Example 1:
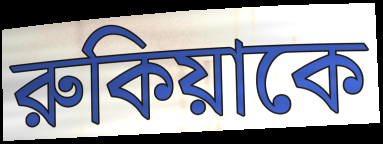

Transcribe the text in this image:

রুকিয়াকে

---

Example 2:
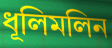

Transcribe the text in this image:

ধূলিমলিন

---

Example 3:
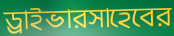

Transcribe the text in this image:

ড্রাইভারসাহেবের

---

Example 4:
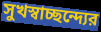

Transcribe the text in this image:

সুখস্বাচ্ছন্দ্যের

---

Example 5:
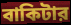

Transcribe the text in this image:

বাকিটার